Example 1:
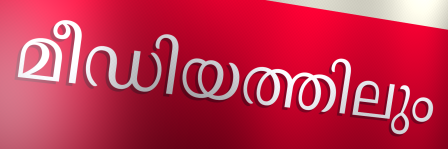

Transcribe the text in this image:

മീഡിയത്തിലും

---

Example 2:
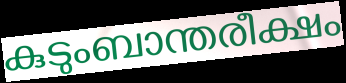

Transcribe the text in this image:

കുടുംബാന്തരീക്ഷം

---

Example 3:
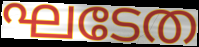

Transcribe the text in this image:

ഘടേത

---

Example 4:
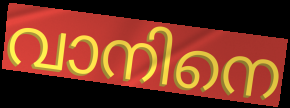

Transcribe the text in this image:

വാനിനെ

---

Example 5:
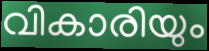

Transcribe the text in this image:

വികാരിയും